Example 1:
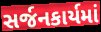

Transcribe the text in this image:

સર્જનકાર્યમાં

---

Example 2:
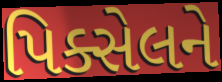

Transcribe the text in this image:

પિક્સેલને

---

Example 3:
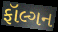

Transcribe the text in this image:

ફૉલ્ગન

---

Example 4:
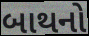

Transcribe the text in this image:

બાથનો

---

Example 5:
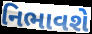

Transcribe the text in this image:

નિભાવશે